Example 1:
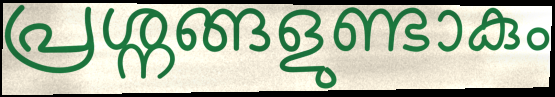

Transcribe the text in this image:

പ്രശ്നങ്ങളുണ്ടാകും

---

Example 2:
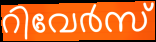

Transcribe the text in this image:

റിവേർസ്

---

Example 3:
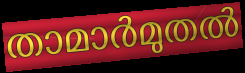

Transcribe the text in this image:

താമാർമുതൽ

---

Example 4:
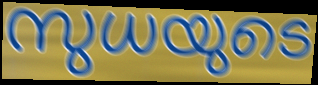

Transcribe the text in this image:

സുധയുടെ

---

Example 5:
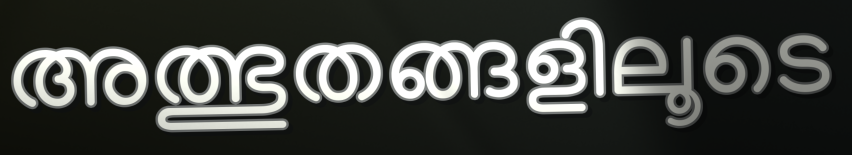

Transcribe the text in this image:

അത്ഭുതങ്ങളിലൂടെ